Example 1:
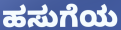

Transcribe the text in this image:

ಹಸುಗೆಯ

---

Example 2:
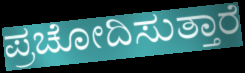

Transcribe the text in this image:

ಪ್ರಚೋದಿಸುತ್ತಾರೆ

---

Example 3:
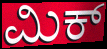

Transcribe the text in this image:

ಮಿಕ್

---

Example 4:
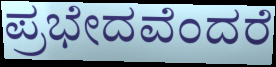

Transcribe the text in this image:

ಪ್ರಭೇದವೆಂದರೆ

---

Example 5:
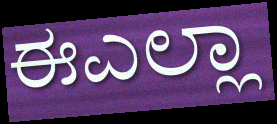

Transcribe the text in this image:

ಈಎಲ್ಲಾ